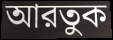
আরতুক